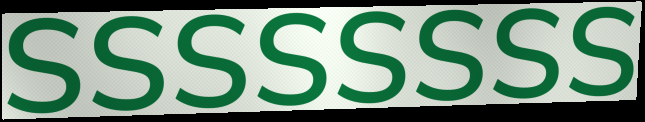
SSSSSSSS